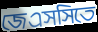
জেএসসিতে